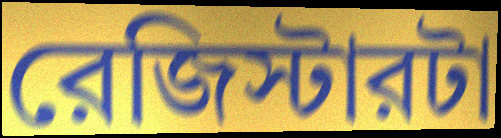
রেজিস্টারটা